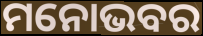
ମନୋଭବର